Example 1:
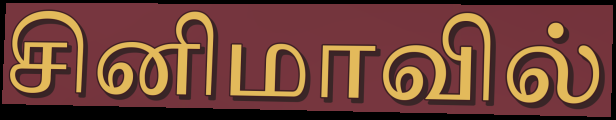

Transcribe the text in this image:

சினிமாவில்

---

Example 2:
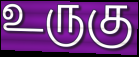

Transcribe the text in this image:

உருகு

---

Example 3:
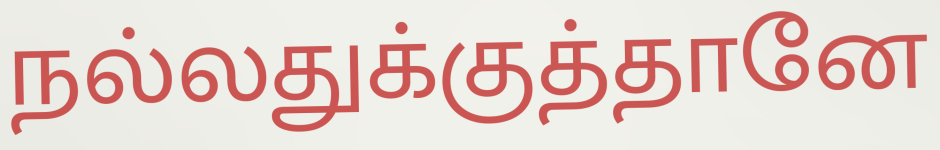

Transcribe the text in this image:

நல்லதுக்குத்தானே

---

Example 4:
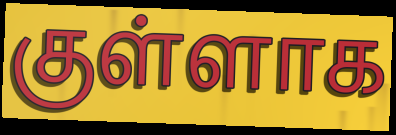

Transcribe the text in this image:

குள்ளாக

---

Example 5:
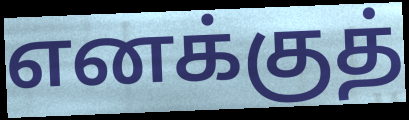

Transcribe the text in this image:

எனக்குத்